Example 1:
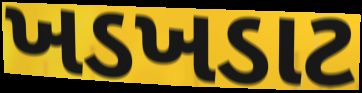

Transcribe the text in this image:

ખડખડાટ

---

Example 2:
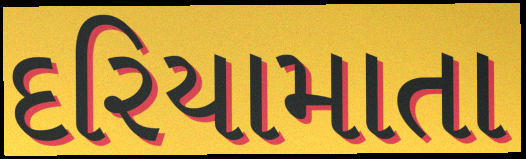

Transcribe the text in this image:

દરિયામાતા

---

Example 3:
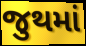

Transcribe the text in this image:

જુથમાં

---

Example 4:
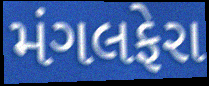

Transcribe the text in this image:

મંગલફેરા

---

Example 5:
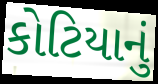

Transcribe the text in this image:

કોટિયાનું